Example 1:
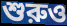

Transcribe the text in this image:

শুরুও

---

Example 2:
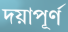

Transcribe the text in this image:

দয়াপূর্ণ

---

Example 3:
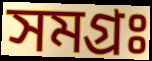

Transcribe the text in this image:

সমগ্রঃ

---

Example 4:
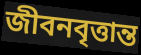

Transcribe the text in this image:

জীবনবৃত্তান্ত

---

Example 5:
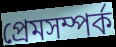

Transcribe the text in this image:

প্রেমসম্পর্ক